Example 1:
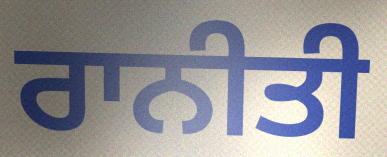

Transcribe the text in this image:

ਰਾਨੀਤੀ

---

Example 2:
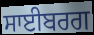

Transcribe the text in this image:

ਸਾਈਬਰਗ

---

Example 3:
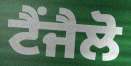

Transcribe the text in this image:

ਟੈਂਜੈਲੋ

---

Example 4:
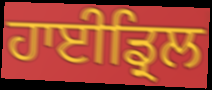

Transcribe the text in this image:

ਹਾਈਡ੍ਰਿਲ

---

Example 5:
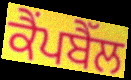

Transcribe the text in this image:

ਕੈਂਪਬੈੱਲ